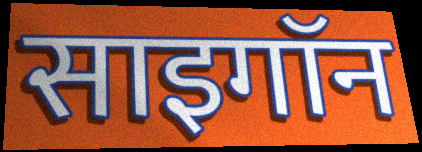
साइगॉन